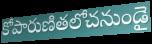
కోపారుణితలోచనుండై